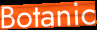
Botanic